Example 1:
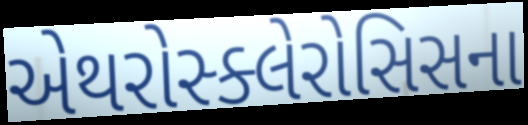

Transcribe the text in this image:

એથરોસ્ક્લેરોસિસના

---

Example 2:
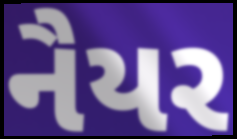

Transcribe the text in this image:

નૈયર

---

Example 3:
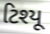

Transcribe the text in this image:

ટિશ્યૂ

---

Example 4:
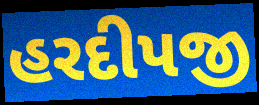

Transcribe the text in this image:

હરદીપજી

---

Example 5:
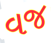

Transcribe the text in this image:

વજ